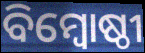
ବିମ୍ବୋଷ୍ଠୀ